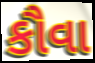
કૌવા